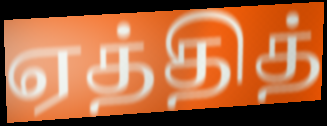
ஏத்தித்